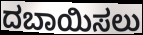
ದಬಾಯಿಸಲು